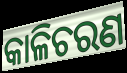
କାଳିଚରଣ